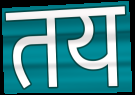
तय